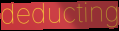
deducting